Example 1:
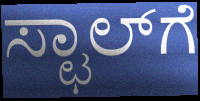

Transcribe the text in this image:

ಸ್ಟಾಲ್‌ಗೆ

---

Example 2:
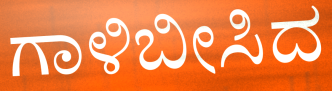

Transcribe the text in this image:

ಗಾಳಿಬೀಸಿದ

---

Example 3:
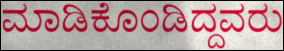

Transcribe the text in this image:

ಮಾಡಿಕೊಂಡಿದ್ದವರು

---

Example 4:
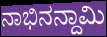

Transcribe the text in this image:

ನಾಭಿನನ್ದಾಮಿ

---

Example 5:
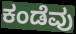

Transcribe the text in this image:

ಕಂಡೆವು